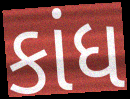
કાંધ